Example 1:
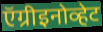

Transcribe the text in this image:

ऍग्रीइनोव्हेट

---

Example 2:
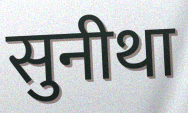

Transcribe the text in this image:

सुनीथा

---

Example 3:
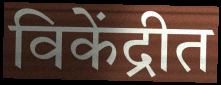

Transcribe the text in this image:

विकेंद्रीत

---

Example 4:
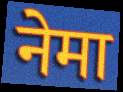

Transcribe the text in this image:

नेमा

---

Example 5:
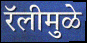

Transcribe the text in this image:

रॅलीमुळे